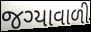
જગ્યાવાળી